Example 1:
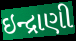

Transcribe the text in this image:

ઇન્દ્રાણી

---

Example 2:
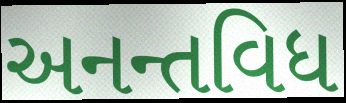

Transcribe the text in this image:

અનન્તવિધ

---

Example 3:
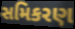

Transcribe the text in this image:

સમિકરણ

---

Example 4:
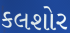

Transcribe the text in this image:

કલશોર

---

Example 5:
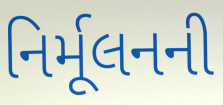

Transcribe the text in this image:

નિર્મૂલનની